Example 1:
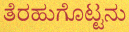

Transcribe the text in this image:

ತೆರಹುಗೊಟ್ಟನು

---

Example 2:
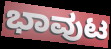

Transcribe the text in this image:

ಭಾವುಟ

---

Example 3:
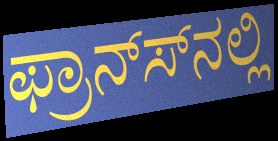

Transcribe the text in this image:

ಫ್ರಾನ್ಸ್‍ನಲ್ಲಿ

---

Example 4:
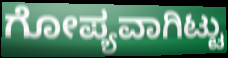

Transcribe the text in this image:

ಗೋಪ್ಯವಾಗಿಟ್ಟು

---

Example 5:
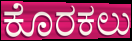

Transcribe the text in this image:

ಕೊರಕಲು